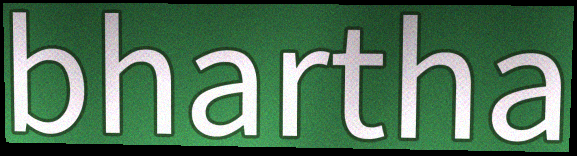
bhartha